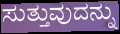
ಸುತ್ತುವುದನ್ನು